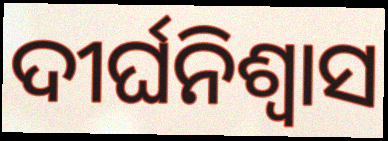
ଦୀର୍ଘନିଶ୍ୱାସ